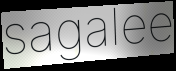
sagalee